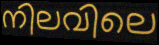
നിലവിലെ